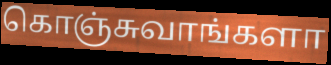
கொஞ்சுவாங்களா